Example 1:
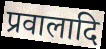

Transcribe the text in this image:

प्रवालादि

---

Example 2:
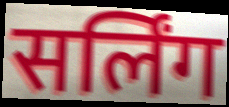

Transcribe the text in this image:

सर्लिंग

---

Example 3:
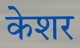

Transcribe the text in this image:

केशर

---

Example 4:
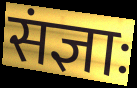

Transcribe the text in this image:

संज्ञाः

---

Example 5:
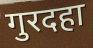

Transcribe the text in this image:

गुरदहा